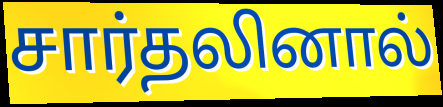
சார்தலினால்